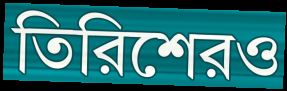
তিরিশেরও